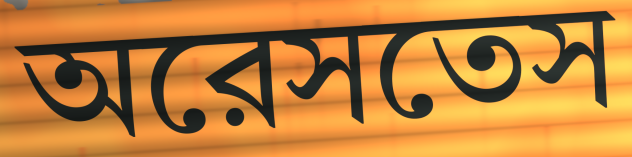
অরেসতেস